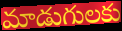
మాడుగులకు